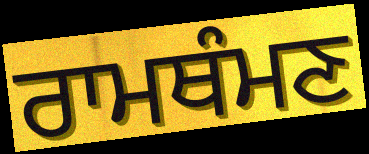
ਰਾਮਥੰਮਣ